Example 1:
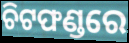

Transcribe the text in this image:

ଚିଟଫଣ୍ଡରେ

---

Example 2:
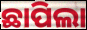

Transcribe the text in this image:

ଛାପିଲା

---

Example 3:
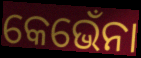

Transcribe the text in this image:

କେଭେଁନା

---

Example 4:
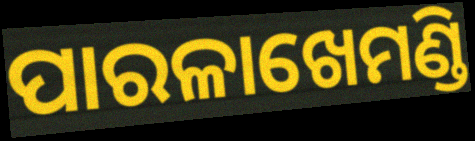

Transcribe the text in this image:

ପାରଳାଖେମଣ୍ଡି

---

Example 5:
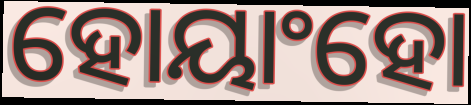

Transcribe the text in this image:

ହୋୟାଂହୋ